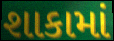
શાકામાં